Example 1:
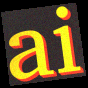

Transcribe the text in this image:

ai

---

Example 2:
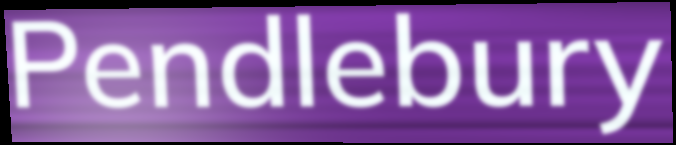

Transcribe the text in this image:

Pendlebury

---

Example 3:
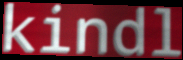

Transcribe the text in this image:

kindl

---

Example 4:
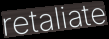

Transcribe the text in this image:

retaliate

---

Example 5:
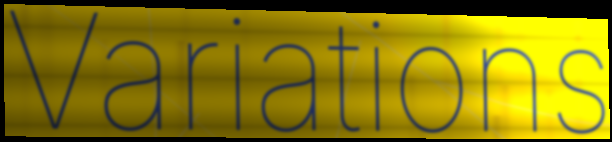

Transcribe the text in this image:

Variations